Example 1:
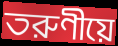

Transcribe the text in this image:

তৰুণীয়ে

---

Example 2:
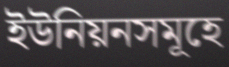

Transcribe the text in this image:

ইউনিয়নসমূহে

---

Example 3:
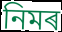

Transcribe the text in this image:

নিমৰ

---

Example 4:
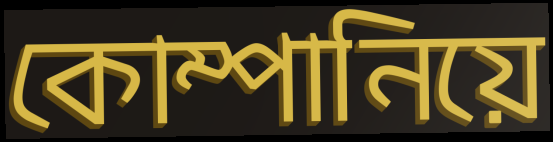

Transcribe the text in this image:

কোম্পানিয়ে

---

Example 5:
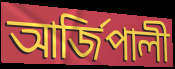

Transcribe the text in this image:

আৰ্জিপালী